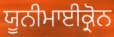
ਯੂਨੀਮਾਈਕ੍ਰੋਨ